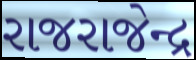
રાજરાજેન્દ્ર